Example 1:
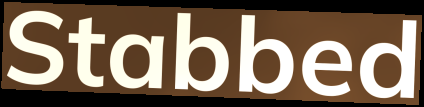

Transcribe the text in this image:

Stabbed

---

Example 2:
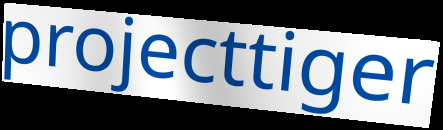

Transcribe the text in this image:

projecttiger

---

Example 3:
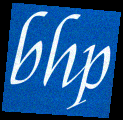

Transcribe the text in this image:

bhp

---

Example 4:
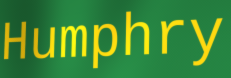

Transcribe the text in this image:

Humphry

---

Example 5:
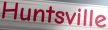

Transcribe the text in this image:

Huntsville